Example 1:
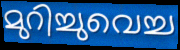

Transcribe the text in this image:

മുറിച്ചുവെച്ച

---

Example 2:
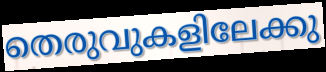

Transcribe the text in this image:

തെരുവുകളിലേക്കു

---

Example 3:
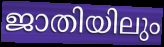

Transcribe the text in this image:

ജാതിയിലും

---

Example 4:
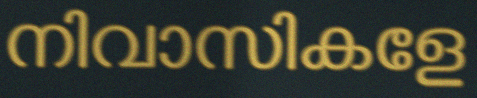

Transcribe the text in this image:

നിവാസികളേ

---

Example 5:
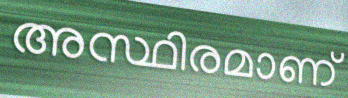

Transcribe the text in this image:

അസ്ഥിരമാണ്